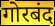
गोरबंद